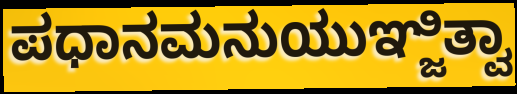
ಪಧಾನಮನುಯುಞ್ಜಿತ್ವಾ